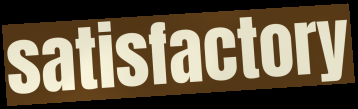
satisfactory